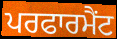
ਪਰਫਾਰਮੈਂਟ